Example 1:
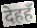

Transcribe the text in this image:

देहहँ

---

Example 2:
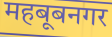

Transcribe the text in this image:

महबूबनगर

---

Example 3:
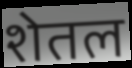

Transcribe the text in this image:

शेतल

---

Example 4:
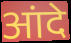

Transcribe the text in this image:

आंदे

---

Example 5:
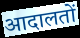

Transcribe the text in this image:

आदालतों